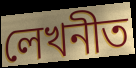
লেখনীত